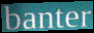
banter